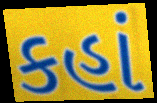
કહાં